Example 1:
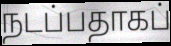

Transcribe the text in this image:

நடப்பதாகப்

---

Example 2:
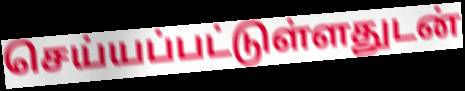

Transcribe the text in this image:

செய்யப்பட்டுள்ளதுடன்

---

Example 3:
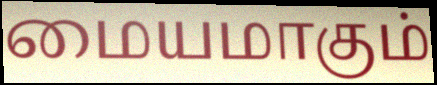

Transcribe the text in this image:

மையமாகும்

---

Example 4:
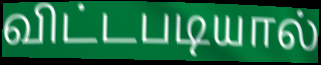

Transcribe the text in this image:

விட்டபடியால்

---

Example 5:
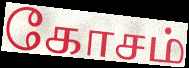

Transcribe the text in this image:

கோசம்